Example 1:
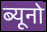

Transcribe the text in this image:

ब्यूनो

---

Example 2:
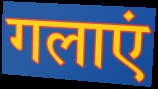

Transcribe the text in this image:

गलाएं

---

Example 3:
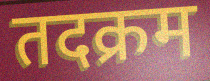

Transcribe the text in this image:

तदक्रम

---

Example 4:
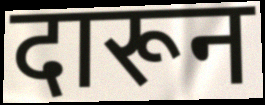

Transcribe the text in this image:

दारून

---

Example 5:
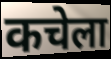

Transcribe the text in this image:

कचेला